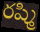
రష్మి